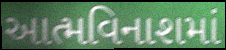
આત્મવિનાશમાં